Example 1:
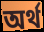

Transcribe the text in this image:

অৰ্থ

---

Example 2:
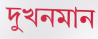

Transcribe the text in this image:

দুখনমান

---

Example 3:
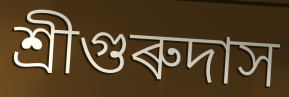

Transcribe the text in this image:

শ্ৰীগুৰুদাস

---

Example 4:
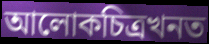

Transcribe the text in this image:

আলোকচিত্ৰখনত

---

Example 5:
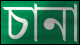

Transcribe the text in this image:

চানা